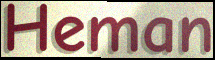
Heman